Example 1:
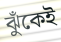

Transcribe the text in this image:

ঝুঁকেই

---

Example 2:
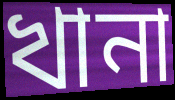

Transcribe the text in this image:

খানা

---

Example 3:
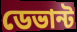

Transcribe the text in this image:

ডেভান্ট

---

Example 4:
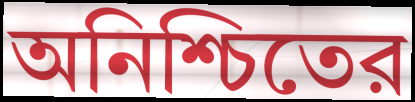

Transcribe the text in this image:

অনিশ্চিতের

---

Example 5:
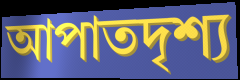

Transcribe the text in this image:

আপাতদৃশ্য